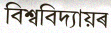
বিশ্ববিদ্যায়ৰ